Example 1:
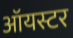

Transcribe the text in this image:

ऑयस्टर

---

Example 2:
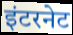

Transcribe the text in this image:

इंटरनेट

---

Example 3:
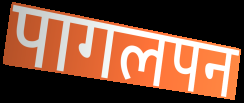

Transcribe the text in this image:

पागलपन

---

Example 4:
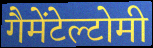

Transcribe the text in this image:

गैमेंटेल्टोमी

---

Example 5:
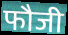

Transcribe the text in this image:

फौजी